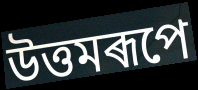
উত্তমৰূপে